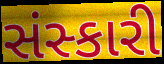
સંસ્કારી